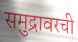
समुद्रावरची